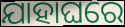
ଯାହାଘରେ